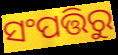
ସଂପତ୍ତିରୁ